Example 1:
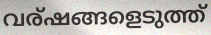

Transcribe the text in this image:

വര്ഷങ്ങളെടുത്ത്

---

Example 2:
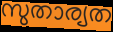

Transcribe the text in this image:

സുതാര്യത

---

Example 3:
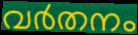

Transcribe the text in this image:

വർതനം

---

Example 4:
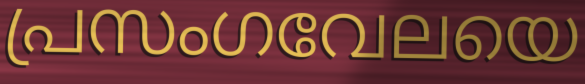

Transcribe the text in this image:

പ്രസംഗവേലയെ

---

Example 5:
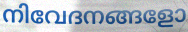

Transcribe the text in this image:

നിവേദനങ്ങളോ